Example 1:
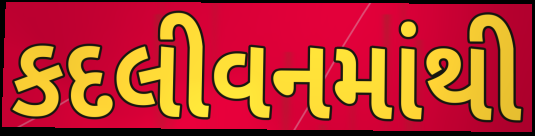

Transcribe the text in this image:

કદલીવનમાંથી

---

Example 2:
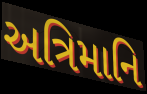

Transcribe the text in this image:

અત્રિમાનિ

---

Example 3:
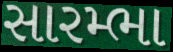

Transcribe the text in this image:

સારમ્ભા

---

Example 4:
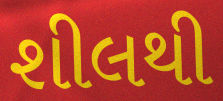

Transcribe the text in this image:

શીલથી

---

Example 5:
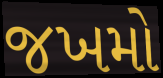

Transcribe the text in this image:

જખમો